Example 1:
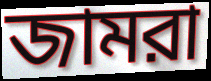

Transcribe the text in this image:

জামরা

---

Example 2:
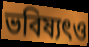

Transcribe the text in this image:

ভবিষ্যৎও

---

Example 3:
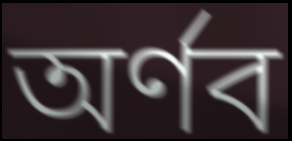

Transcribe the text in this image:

অর্ণব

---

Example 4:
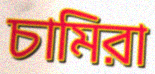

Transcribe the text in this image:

চামিরা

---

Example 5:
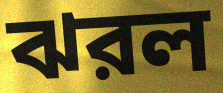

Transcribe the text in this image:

ঝরল